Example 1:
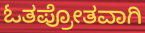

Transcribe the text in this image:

ಓತಪ್ರೋತವಾಗಿ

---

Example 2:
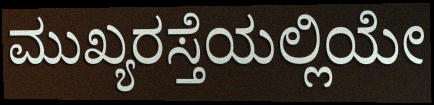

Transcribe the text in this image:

ಮುಖ್ಯರಸ್ತೆಯಲ್ಲಿಯೇ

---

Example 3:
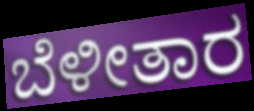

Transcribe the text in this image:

ಬೆಳೀತಾರ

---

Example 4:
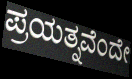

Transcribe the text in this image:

ಪ್ರಯತ್ನವೆಂದೇ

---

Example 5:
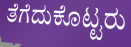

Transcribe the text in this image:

ತೆಗೆದುಕೊಟ್ಟರು